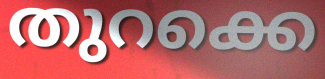
തുറക്കെ